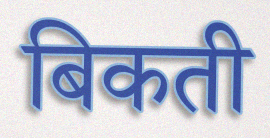
बिकती